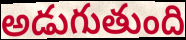
అడుగుతుంది